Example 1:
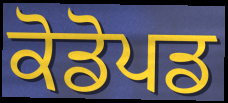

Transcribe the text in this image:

ਕੋਡੋਪਡ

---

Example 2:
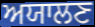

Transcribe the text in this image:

ਅਯਾਲਣ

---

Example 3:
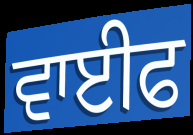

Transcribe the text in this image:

ਵਾਈਫ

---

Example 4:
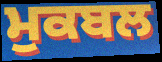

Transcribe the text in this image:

ਮੁਕਬਲ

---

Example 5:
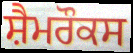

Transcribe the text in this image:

ਸ਼ੈਮਰੌਕਸ